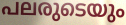
പലരുടെയും